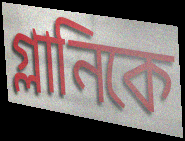
গ্লানিকে